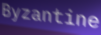
Byzantine